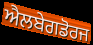
ਐਲਬੇਗਡੋਰਜ